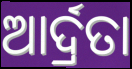
ଆର୍ଦ୍ରତା